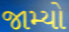
જામ્યો